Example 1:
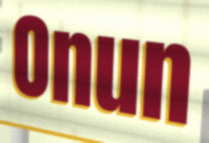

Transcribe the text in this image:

Onun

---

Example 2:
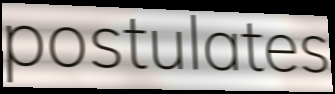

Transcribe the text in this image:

postulates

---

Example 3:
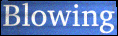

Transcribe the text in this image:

Blowing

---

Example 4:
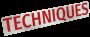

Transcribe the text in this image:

TECHNIQUES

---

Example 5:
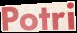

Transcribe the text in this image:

Potri